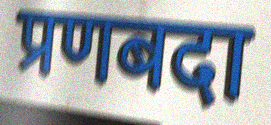
प्रणबदा